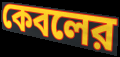
কেবলের